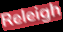
Releigh